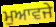
ਮੁਆਵਜੇ